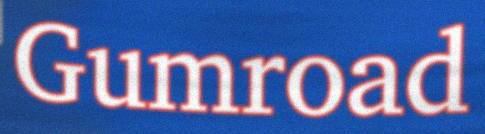
Gumroad